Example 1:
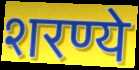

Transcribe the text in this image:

शरण्ये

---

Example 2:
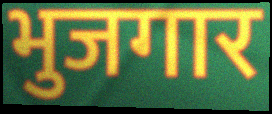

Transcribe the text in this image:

भुजगार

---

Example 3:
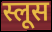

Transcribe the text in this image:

स्लूस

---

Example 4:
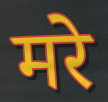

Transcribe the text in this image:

मरे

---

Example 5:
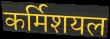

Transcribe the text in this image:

कर्मिशयल